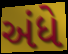
અંધે